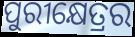
ପୁରୀକ୍ଷେତ୍ରର